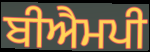
ਬੀਐਮਪੀ